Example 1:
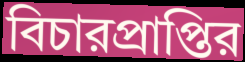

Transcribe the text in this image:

বিচারপ্রাপ্তির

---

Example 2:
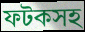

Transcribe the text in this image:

ফটকসহ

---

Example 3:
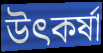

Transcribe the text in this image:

উৎকর্ষা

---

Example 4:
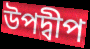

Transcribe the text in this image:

উপদ্বীপ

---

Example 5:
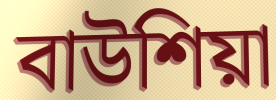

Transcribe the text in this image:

বাউশিয়া